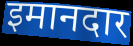
इमानदार